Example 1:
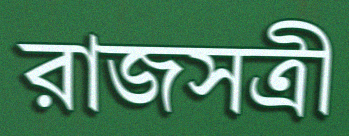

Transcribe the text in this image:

রাজসত্রী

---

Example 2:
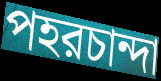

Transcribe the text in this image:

পহরচান্দা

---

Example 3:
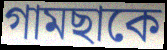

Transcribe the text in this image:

গামছাকে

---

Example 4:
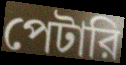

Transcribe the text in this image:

পেটারি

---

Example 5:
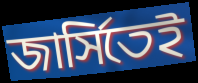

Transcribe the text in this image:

জার্সিতেই